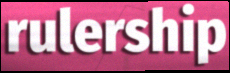
rulership